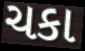
ચકા